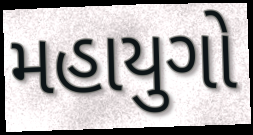
મહાયુગો